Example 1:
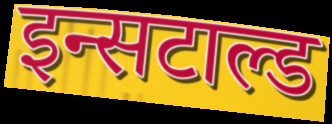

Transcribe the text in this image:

इन्सटाल्ड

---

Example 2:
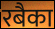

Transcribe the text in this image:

रबैका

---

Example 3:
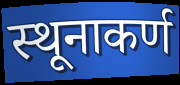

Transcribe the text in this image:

स्थूनाकर्ण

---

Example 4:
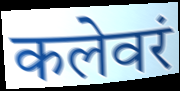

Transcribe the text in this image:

कलेवरं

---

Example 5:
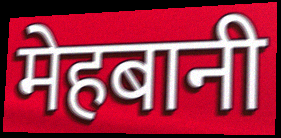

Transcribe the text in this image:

मेहबानी